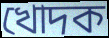
খোদক